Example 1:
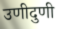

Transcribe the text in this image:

उणीदुणी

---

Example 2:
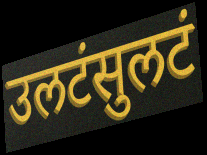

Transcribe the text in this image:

उलटंसुलटं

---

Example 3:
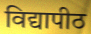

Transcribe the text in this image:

विद्यापीठ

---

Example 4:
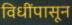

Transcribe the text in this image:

विधींपासून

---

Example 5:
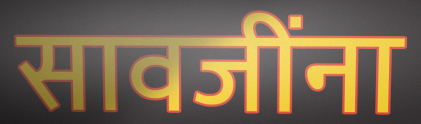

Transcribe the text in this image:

सावजींना